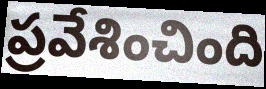
ప్రవేశించింది